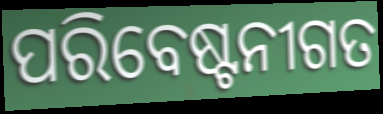
ପରିବେଷ୍ଟନୀଗତ